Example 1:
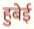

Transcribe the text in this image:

हुबेई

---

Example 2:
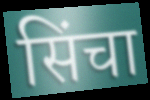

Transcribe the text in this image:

सिंचा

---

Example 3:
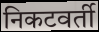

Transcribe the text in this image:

निकटवर्ती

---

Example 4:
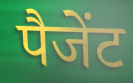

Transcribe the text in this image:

पैजेंट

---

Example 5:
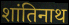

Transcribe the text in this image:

शांतिनाथ